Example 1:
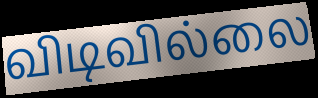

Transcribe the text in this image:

விடிவில்லை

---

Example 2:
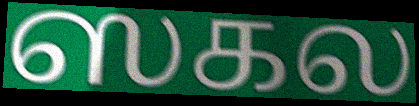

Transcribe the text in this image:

ஸகல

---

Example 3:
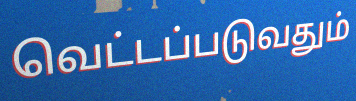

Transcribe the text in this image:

வெட்டப்படுவதும்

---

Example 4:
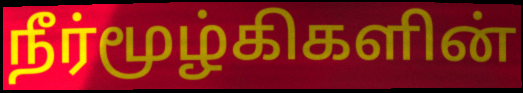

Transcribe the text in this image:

நீர்மூழ்கிகளின்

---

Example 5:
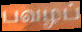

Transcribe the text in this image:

பவழப்